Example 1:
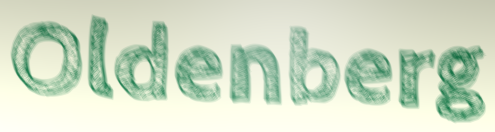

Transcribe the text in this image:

Oldenberg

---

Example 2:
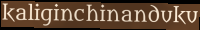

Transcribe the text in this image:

kaliginchinanduku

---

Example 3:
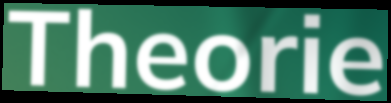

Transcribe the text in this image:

Theorie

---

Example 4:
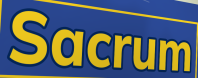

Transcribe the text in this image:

Sacrum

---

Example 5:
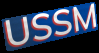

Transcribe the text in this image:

USSM